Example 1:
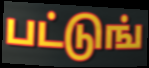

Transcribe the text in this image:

பட்டுங்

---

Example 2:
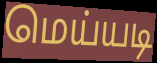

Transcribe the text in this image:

மெய்யடி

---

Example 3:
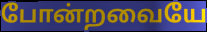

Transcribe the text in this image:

போன்றவையே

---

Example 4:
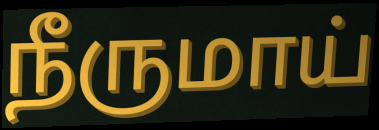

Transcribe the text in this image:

நீருமாய்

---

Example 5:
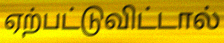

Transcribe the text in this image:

ஏற்பட்டுவிட்டால்